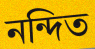
নন্দিত